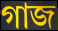
গাজ